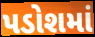
પડોશમાં